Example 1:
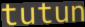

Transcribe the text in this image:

tutun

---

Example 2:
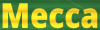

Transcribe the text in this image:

Mecca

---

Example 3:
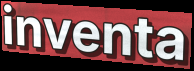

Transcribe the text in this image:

inventa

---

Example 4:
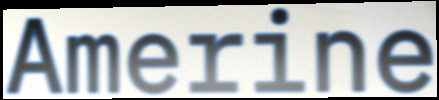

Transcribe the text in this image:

Amerine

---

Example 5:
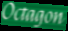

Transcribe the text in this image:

Octagon